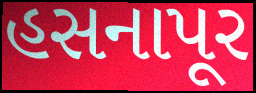
હસનાપૂર